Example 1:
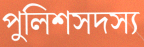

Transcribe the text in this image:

পুলিশসদস্য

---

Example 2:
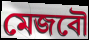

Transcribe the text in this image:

মেজবৌ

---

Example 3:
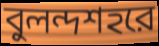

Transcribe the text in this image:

বুলন্দশহরে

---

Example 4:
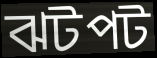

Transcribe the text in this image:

ঝটপট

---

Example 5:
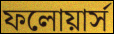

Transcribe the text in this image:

ফলোয়ার্স